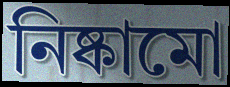
নিষ্কামো